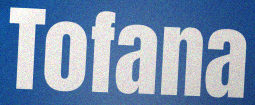
Tofana